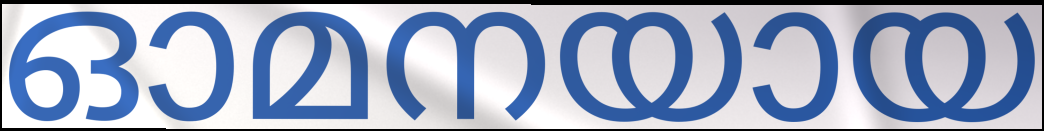
ഓമനയായ